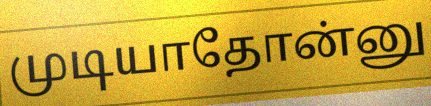
முடியாதோன்னு